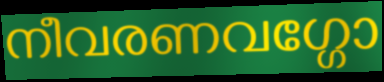
നീവരണവഗ്ഗോ